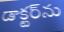
డాక్టర్‌ను